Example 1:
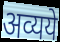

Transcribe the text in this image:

अव्यये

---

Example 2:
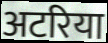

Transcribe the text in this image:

अटरिया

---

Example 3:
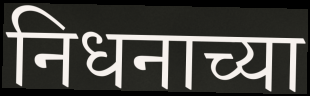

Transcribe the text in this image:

निधनाच्या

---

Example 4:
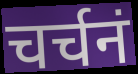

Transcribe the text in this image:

चर्चनं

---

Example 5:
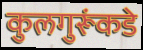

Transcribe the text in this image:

कुलगुरूंकडे